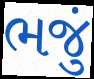
ભજું